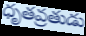
ధృతవ్రతుడు